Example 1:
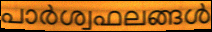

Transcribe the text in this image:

പാർശ്വഫലങ്ങൾ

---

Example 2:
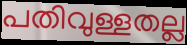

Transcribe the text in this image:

പതിവുള്ളതല്ല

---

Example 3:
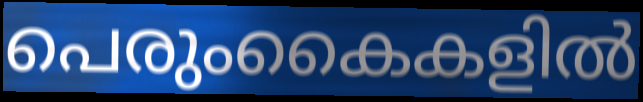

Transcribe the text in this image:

പെരുംകൈകളിൽ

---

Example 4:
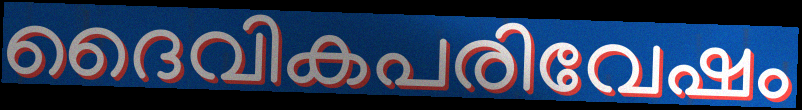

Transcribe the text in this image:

ദൈവികപരിവേഷം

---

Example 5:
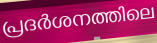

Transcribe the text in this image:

പ്രദർശനത്തിലെ